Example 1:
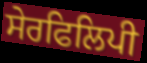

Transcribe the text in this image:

ਸੇਰਫਿਲਿਪੀ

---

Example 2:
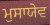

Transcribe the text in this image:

ਮੁਸਾਯੇਵ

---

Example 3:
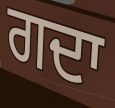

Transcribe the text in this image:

ਗਦਾ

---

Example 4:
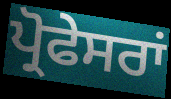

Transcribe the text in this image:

ਪ੍ਰੋਫੇਸਰਾਂ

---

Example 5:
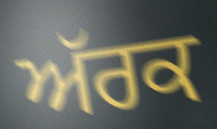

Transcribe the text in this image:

ਅੱਰਕ